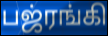
பஜ்ரங்கி